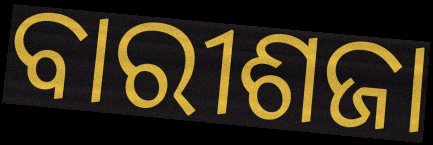
ବାରୀଶଜା